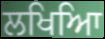
ਲਖਿਆਿ